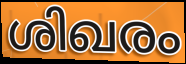
ശിഖരം